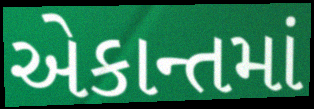
એકાન્તમાં